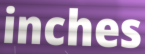
inches